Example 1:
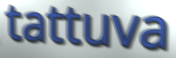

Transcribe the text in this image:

tattuva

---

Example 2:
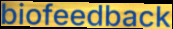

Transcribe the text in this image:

biofeedback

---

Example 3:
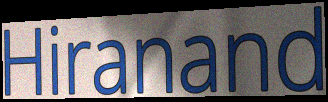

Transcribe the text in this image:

Hiranand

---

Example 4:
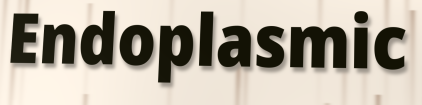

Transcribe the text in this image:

Endoplasmic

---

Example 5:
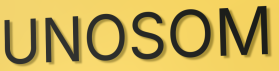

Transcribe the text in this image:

UNOSOM